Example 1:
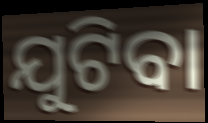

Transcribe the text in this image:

ଯୁଟିବା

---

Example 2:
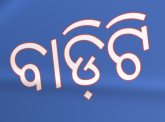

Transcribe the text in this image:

ବାଡ଼ିଟି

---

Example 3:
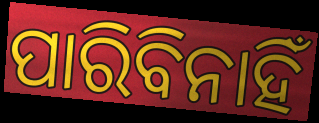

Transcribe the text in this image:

ପାରିବିନାହିଁ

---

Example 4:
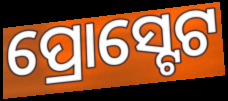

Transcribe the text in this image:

ପ୍ରୋସ୍ଟେଟ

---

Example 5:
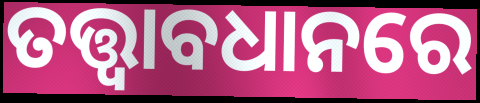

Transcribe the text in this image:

ତତ୍ତ୍ଵାବଧାନରେ